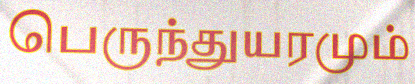
பெருந்துயரமும்